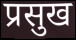
प्रसुख